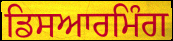
ਡਿਸਆਰਮਿੰਗ